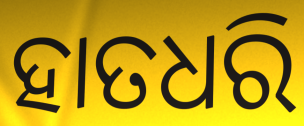
ହାତଧରି